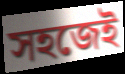
সহজেই